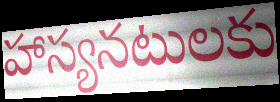
హాస్యనటులకు